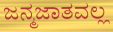
ಜನ್ಮಜಾತವಲ್ಲ